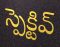
స్పెక్టివ్